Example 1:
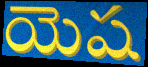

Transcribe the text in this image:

యెష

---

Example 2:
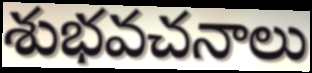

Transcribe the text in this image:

శుభవచనాలు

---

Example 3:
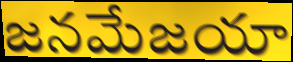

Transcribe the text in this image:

జనమేజయా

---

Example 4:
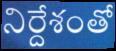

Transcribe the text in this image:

నిర్దేశంతో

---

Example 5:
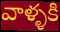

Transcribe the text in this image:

వాళ్ళకి